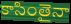
కాసింతైనా